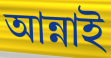
আন্নাই